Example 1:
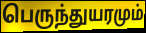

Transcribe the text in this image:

பெருந்துயரமும்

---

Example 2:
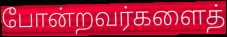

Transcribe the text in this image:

போன்றவர்களைத்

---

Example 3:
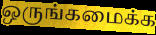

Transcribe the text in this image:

ஒருங்கமைக்க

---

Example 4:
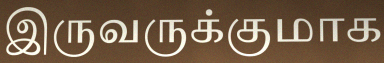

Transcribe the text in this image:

இருவருக்குமாக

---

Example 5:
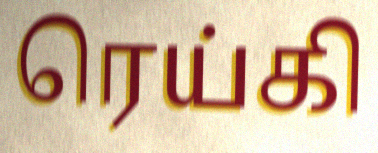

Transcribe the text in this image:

ரெய்கி